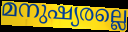
മനുഷ്യരല്ലെ